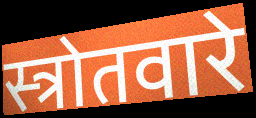
स्त्रोतवारे